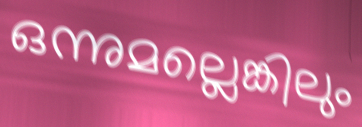
ഒന്നുമല്ലെങ്കിലും